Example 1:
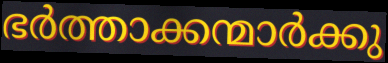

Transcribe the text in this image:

ഭർത്താക്കന്മാർക്കു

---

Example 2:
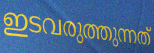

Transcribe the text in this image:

ഇടവരുത്തുന്നത്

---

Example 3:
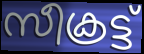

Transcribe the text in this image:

സീക്രട്ട്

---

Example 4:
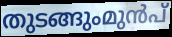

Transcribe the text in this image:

തുടങ്ങുംമുൻപ്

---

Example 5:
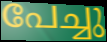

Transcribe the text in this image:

പേച്ചു